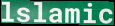
lslamic